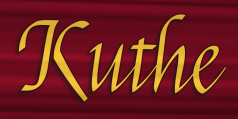
Kuthe